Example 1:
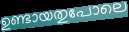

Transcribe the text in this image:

ഉണ്ടായതുപോലെ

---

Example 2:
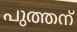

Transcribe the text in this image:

പുത്തന്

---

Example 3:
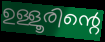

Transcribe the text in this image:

ഉള്ളൂരിന്റെ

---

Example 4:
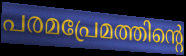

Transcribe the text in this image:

പരമപ്രേമത്തിന്റെ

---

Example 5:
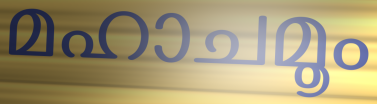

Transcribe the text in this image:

മഹാചമൂം